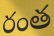
రంత